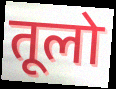
तूलो